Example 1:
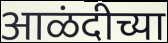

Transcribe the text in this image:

आळंदीच्या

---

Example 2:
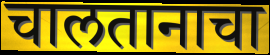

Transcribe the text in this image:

चालतानाचा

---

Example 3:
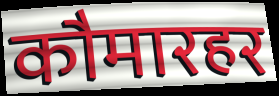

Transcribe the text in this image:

कौमारहर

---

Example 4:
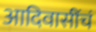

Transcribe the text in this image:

आदिवासींचं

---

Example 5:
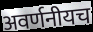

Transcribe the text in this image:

अवर्णनीयच